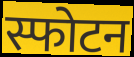
स्फोटन